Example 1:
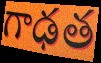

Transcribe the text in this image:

గాఢత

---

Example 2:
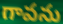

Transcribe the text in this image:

గావను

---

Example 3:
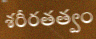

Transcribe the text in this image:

శరీరతత్వం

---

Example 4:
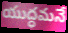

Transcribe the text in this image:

యుద్ధమనే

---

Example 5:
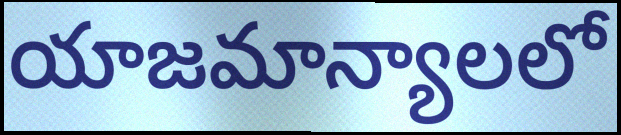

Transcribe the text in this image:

యాజమాన్యాలలో